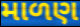
માળણ